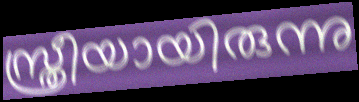
സ്ത്രീയായിരുന്നു